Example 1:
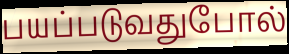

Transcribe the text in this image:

பயப்படுவதுபோல்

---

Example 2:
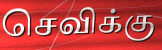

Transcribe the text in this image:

செவிக்கு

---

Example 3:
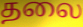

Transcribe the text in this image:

தலை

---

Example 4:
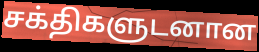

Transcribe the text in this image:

சக்திகளுடனான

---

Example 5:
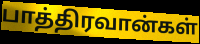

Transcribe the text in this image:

பாத்திரவான்கள்